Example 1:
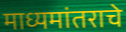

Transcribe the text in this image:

माध्यमांतराचे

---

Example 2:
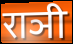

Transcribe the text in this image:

राञी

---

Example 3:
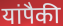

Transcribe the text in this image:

यांपैकी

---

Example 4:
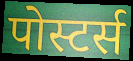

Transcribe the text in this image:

पोस्टर्स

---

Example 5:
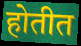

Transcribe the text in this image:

होतीत